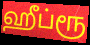
ஹீப்ரூ